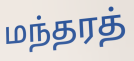
மந்தரத்